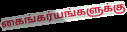
கைங்கர்யங்களுக்கு